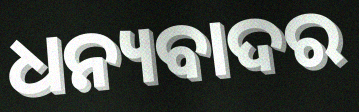
ଧନ୍ୟବାଦର